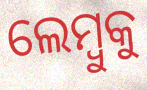
ଲେମ୍ବୁକୁ